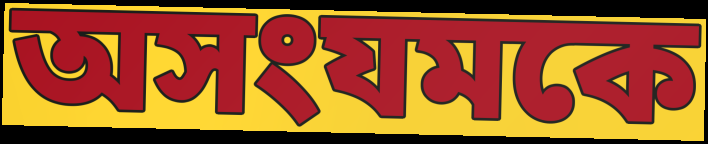
অসংযমকে